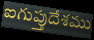
ఐగుప్తుదేశము